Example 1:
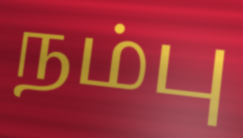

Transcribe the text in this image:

நம்பு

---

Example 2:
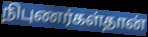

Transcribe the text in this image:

நிபுணர்கள்தான்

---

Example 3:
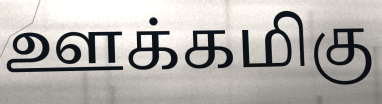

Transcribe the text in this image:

ஊக்கமிகு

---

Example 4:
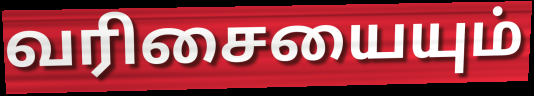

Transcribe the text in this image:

வரிசையையும்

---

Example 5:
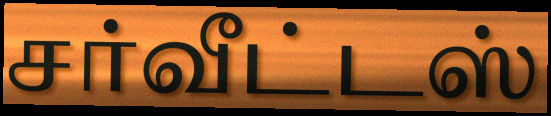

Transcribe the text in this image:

சர்வீட்டஸ்